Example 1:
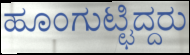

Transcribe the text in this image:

ಹೂಂಗುಟ್ಟಿದ್ದರು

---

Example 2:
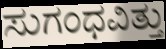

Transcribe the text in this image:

ಸುಗಂಧವಿತ್ತು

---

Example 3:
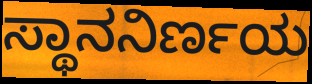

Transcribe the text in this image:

ಸ್ಥಾನನಿರ್ಣಯ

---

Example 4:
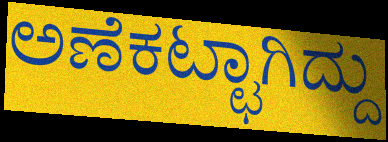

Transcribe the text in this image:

ಅಣೆಕಟ್ಟಾಗಿದ್ದು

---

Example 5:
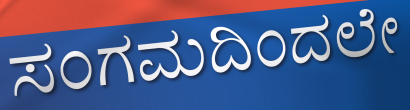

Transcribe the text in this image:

ಸಂಗಮದಿಂದಲೇ